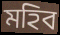
মহিব